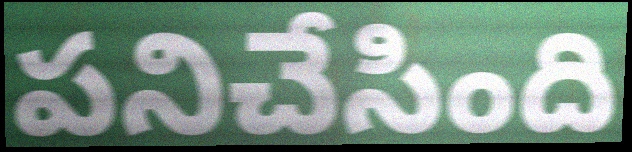
పనిచేసింది